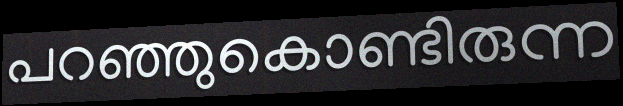
പറഞ്ഞുകൊണ്ടിരുന്ന